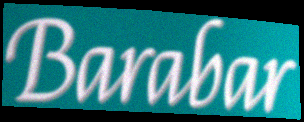
Barabar